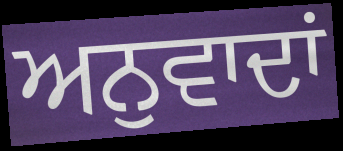
ਅਨੁਵਾਦਾਂ